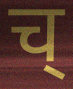
च्